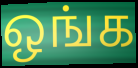
ஒங்க